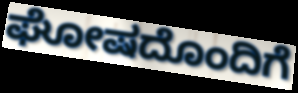
ಘೋಷದೊಂದಿಗೆ